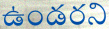
ఉండరని